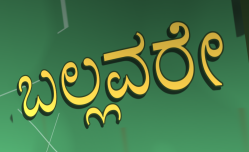
ಬಲ್ಲವರೇ